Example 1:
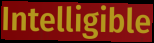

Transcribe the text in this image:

Intelligible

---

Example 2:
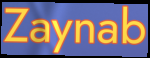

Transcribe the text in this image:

Zaynab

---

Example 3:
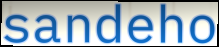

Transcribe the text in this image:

sandeho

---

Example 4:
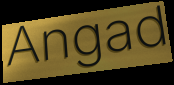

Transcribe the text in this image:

Angad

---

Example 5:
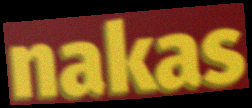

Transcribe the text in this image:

nakas